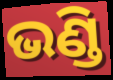
ଭଣ୍ଡି